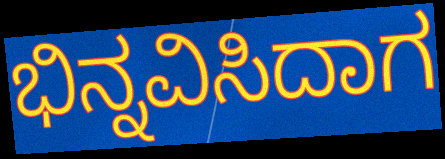
ಭಿನ್ನವಿಸಿದಾಗ